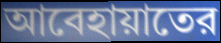
আবেহায়াতের